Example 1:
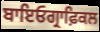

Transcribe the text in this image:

ਬਾਇਓਗ੍ਰਾਫ਼ਿਕਲ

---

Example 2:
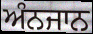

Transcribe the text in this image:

ਅੰਨਜਾਨ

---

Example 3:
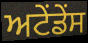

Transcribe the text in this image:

ਅਟੇਂਡੇਂਸ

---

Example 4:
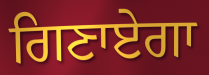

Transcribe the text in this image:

ਗਿਣਾਏਗਾ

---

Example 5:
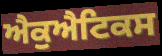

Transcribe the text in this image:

ਐਕੁਐਟਿਕਸ